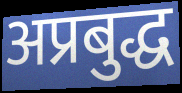
अप्रबुद्ध